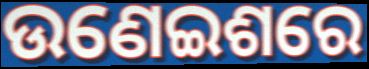
ଉଣେଇଶରେ